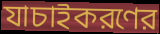
যাচাইকরণের